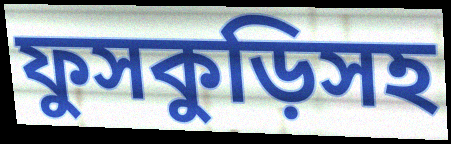
ফুসকুড়িসহ